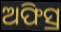
ଅଫିସ୍ର